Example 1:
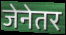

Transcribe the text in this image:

जेनेतर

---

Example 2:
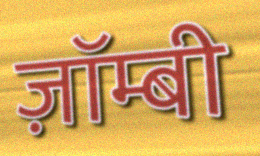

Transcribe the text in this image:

ज़ॉम्बी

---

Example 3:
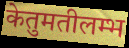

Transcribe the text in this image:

केतुमतीलम्भ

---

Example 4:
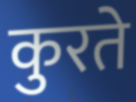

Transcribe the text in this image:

कुरते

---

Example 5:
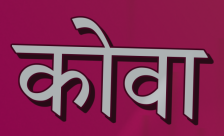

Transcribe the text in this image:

कोवा